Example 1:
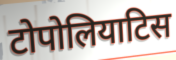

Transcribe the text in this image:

टोपोलियाटिस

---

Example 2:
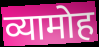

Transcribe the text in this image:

व्यामोह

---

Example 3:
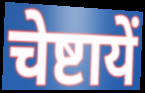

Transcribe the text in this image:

चेष्टायें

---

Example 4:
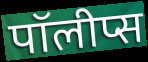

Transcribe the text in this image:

पॉलीप्स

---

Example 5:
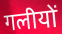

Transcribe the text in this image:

गलीयों